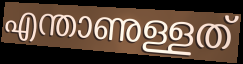
എന്താണുള്ളത്